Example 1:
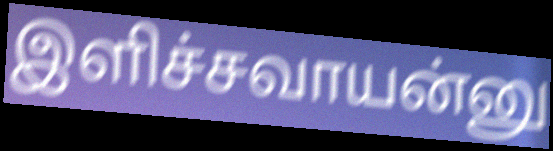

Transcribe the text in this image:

இளிச்சவாயன்னு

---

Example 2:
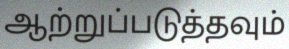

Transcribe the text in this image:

ஆற்றுப்படுத்தவும்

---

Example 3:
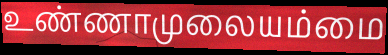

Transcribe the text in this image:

உண்ணாமுலையம்மை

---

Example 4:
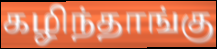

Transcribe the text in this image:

கழிந்தாங்கு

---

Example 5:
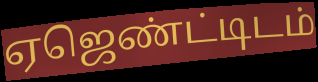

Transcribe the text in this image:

ஏஜெண்ட்டிடம்